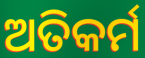
ଅତିକର୍ମ